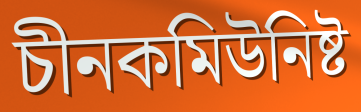
চীনকমিউনিষ্ট